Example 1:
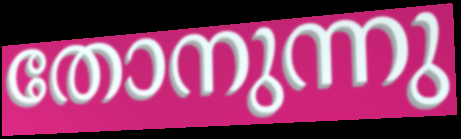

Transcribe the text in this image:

തോനുന്നു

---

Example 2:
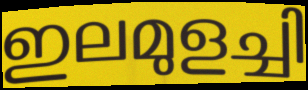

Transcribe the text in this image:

ഇലമുളച്ചി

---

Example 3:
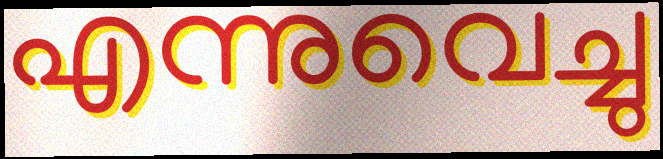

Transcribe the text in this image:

എന്നുവെച്ചു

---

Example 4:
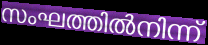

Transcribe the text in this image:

സംഘത്തിൽനിന്ന്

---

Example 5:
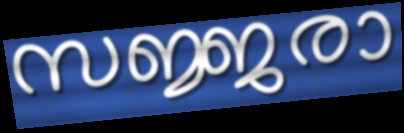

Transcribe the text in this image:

സജ്ജരാ